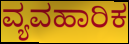
ವ್ಯವಹಾರಿಕ